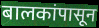
बालकांपासून